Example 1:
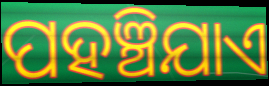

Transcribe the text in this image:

ପହଞ୍ଚିଯାଏ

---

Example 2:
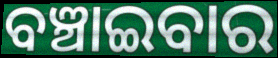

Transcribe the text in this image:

ବଞ୍ଚାଇବାର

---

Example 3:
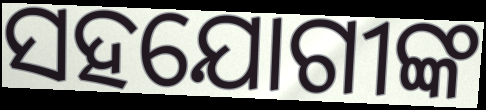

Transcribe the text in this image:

ସହଯୋଗୀଙ୍କ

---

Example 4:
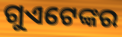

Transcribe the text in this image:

ଗୁଏଟେଙ୍କର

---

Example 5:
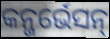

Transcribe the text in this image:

କନ୍ଜର୍ଭେସନ୍